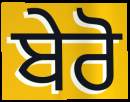
ਬੇਰੋ